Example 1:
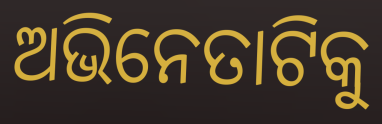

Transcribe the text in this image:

ଅଭିନେତାଟିକୁ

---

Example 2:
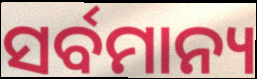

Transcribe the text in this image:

ସର୍ବମାନ୍ୟ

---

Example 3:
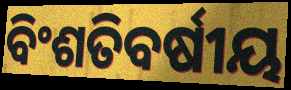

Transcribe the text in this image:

ବିଂଶତିବର୍ଷୀୟ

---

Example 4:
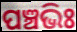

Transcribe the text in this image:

ପଞ୍ଚଭିଃ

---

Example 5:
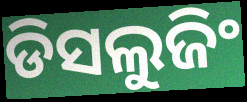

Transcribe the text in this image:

ଡିସଲୁଜିଂ